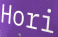
Hori